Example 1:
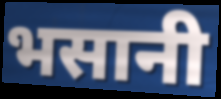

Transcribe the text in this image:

भसानी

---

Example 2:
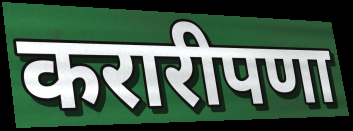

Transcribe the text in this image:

करारीपणा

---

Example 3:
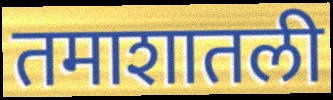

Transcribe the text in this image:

तमाशातली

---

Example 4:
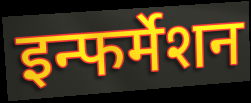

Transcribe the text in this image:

इन्फर्मेशन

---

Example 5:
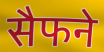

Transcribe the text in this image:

सैफने